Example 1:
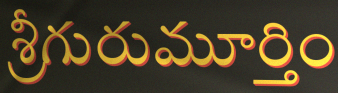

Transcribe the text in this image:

శ్రీగురుమూర్తిం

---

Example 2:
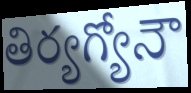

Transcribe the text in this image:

తిర్యగ్యోనౌ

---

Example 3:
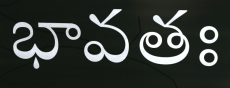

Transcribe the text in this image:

భావతః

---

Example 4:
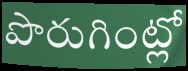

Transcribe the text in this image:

పొరుగింట్లో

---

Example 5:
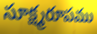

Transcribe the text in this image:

సూక్ష్మరూపము